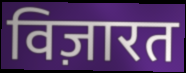
विज़ारत